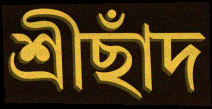
শ্রীছাঁদ